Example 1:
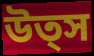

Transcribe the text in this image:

উত্স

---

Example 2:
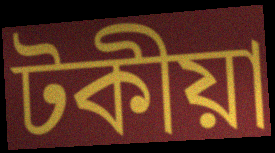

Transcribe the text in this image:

টকীয়া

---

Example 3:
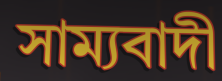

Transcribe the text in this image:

সাম্যবাদী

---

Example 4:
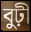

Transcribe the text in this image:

বুঢ়ী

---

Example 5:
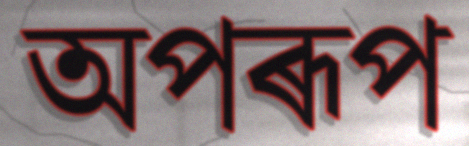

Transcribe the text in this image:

অপৰূপ